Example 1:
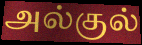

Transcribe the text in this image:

அல்குல்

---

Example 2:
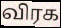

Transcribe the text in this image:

விரக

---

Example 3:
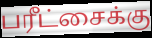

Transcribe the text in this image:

பரீட்சைக்கு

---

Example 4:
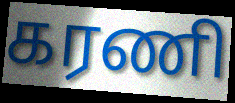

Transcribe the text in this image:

கரணி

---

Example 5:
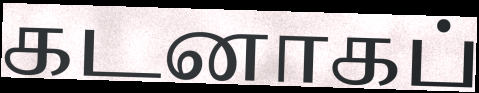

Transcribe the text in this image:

கடனாகப்